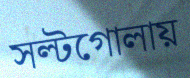
সল্টগোলায়